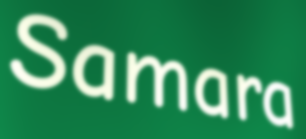
Samara